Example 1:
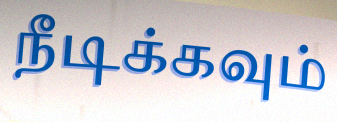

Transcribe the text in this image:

நீடிக்கவும்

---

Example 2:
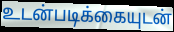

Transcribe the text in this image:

உடன்படிக்கையுடன்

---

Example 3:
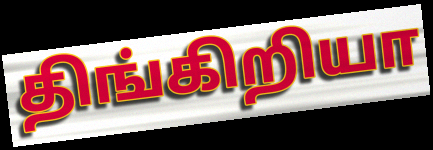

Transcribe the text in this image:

திங்கிறியா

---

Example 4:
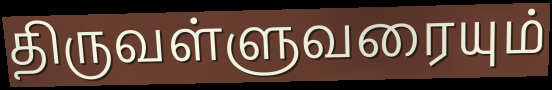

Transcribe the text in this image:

திருவள்ளுவரையும்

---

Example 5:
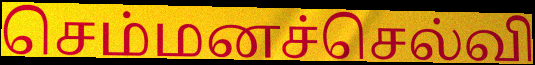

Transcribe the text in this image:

செம்மனச்செல்வி